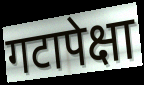
गटापेक्षा